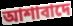
আশাবাদে